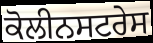
ਕੋਲੀਨਸਟਰੇਸ